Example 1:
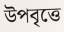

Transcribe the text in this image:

উপবৃত্তে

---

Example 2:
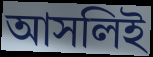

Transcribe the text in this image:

আসলিই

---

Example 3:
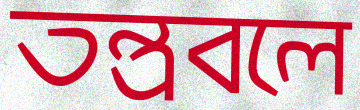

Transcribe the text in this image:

তন্ত্রবলে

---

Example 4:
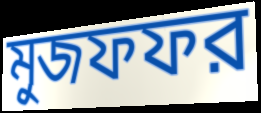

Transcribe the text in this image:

মুজফফর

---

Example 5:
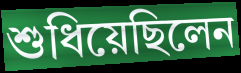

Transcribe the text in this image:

শুধিয়েছিলেন